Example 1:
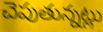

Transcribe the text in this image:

చెపుతున్నట్లు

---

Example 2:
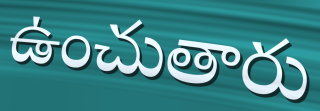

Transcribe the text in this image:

ఉంచుతారు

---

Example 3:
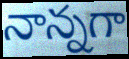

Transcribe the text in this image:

నాన్నగా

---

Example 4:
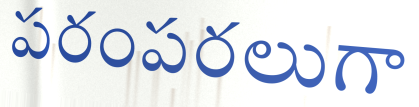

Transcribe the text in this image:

పరంపరలుగా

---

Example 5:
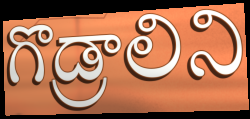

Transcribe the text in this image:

గొడ్రాలిని